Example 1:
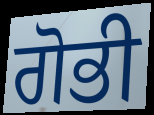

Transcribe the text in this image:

ਗੋਭੀ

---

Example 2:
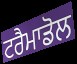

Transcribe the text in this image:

ਟਰੈਮਾਡੋਲ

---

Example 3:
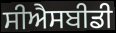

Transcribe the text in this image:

ਸੀਐਸਬੀਡੀ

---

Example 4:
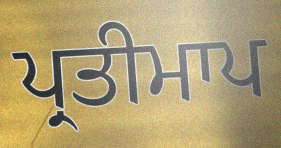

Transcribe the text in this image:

ਪ੍ਰਤੀਮਾਪ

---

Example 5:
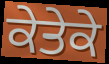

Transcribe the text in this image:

ਕੇਤੇਕੇ